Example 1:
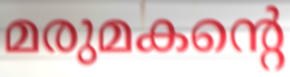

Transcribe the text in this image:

മരുമകന്റെ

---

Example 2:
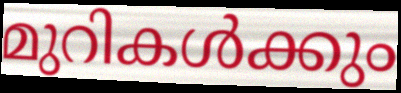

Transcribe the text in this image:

മുറികൾക്കും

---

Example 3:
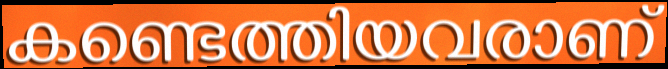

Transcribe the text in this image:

കണ്ടെത്തിയവരാണ്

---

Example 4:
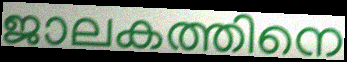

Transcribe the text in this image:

ജാലകത്തിനെ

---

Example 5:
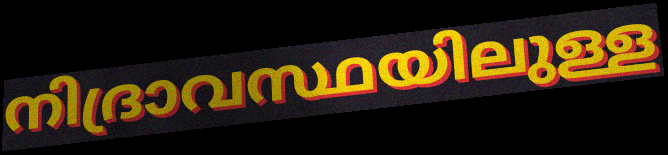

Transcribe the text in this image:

നിദ്രാവസ്ഥയിലുള്ള